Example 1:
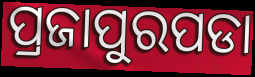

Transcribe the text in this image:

ପ୍ରଜାପୁରପଡା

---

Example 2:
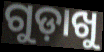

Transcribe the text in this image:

ଗୁଡ଼ାଖୁ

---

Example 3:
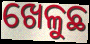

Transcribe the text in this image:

ଖେଳୁଛ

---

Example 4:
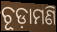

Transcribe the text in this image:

ଚୂଡ଼ାମଣି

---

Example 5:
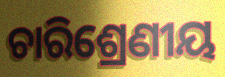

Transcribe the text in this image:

ଚାରିଶ୍ରେଣୀୟ